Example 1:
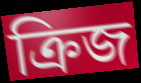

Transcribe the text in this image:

ক্রিজ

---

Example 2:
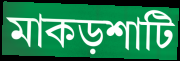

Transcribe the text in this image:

মাকড়শাটি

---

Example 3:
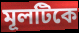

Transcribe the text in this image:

মূলটিকে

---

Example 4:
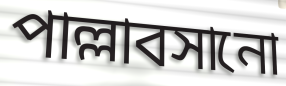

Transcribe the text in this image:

পাল্লাবসানো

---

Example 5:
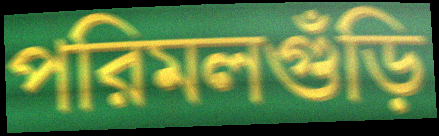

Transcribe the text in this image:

পরিমলগুঁড়ি